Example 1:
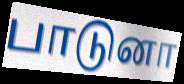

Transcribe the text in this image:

பாடுனா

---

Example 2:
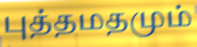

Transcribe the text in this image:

புத்தமதமும்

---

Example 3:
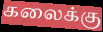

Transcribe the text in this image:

கலைக்கு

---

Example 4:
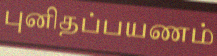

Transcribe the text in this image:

புனிதப்பயணம்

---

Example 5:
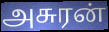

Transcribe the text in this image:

அசுரன்